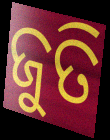
ଜୁତି